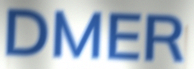
DMER